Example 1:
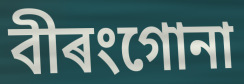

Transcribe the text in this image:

বীৰংগোনা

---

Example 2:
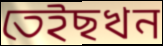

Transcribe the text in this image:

তেইছখন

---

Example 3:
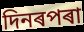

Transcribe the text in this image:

দিনৰপৰা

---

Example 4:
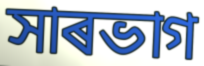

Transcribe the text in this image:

সাৰভাগ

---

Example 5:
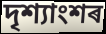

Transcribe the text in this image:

দৃশ্যাংশৰ